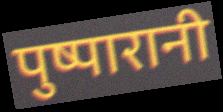
पुष्पारानी